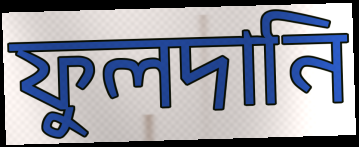
ফুলদানি